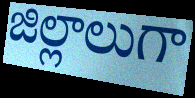
జిల్లాలుగా